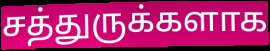
சத்துருக்களாக